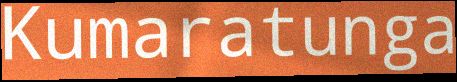
Kumaratunga